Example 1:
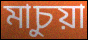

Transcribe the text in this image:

মাচুয়া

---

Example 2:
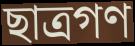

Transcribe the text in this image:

ছাত্রগণ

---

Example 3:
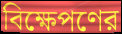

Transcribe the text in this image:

বিক্ষেপণের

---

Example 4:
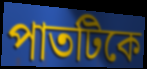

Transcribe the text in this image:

পাতটিকে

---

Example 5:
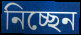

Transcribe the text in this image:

নিচ্ছেন